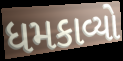
ધમકાવ્યો